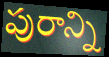
పురాన్ని